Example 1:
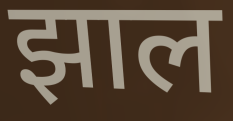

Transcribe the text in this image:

झाल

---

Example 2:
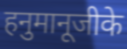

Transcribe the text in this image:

हनुमानूजीके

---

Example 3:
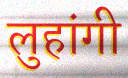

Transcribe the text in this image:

लुहांगी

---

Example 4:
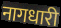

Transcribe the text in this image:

नागधारी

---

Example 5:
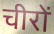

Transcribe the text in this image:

चीरों